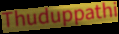
Thuduppathi